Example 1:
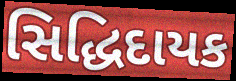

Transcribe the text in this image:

સિદ્ધિદાયક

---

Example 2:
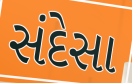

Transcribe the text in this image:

સંદેસા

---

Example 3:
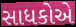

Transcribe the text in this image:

સાધકોએ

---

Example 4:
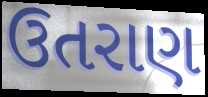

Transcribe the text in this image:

ઉતરાણ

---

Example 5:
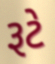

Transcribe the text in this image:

રૂટે